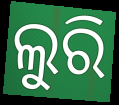
ଲୁରି